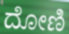
ದೋಣಿ